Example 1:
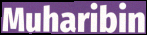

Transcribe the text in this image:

Muharibin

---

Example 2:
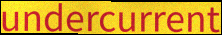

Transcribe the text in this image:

undercurrent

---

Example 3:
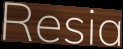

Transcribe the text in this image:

Resia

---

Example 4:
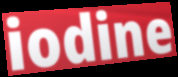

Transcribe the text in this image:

iodine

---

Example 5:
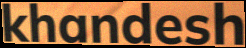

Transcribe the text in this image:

khandesh